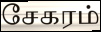
சேகரம்